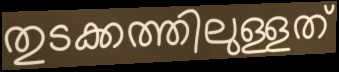
തുടക്കത്തിലുള്ളത്